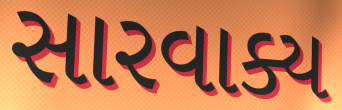
સારવાક્ય